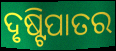
ଦୃଷ୍ଟିପାତର